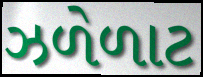
ઝળેળાટ